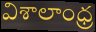
విశాలాంధ్ర